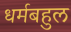
धर्मबहुल